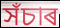
সঁচাৰ